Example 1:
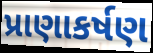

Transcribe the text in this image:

પ્રાણાકર્ષણ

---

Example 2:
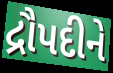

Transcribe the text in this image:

દ્રૌપદીને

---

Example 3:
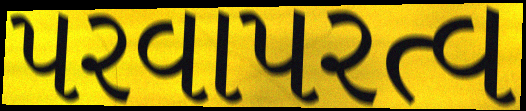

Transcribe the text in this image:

પરવાપરત્વ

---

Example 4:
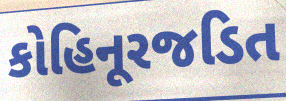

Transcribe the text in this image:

કોહિનૂરજડિત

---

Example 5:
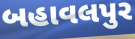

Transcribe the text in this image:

બહાવલપુર